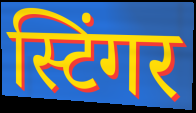
स्टिंगर